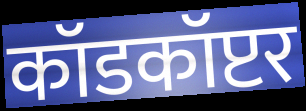
कॉडकॉप्टर